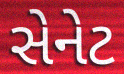
સેનેટ